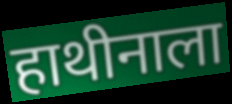
हाथीनाला